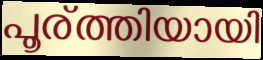
പൂര്ത്തിയായി